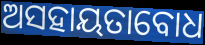
ଅସହାୟତାବୋଧ